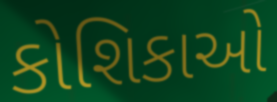
કોશિકાઓ